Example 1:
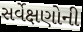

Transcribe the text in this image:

સર્વેક્ષણોની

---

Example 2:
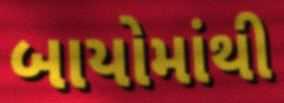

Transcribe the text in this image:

બાયોમાંથી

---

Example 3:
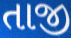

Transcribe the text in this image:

તાજી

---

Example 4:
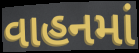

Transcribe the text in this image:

વાહનમાં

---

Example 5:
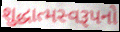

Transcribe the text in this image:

શુદ્ધાત્મસ્વરૂપનો